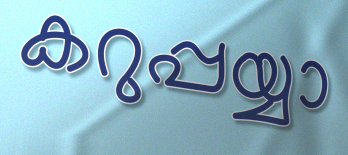
കറുപ്പയ്യാ